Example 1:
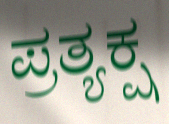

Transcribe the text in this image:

ಪ್ರತ್ಯಕ್ಷ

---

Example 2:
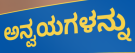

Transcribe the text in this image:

ಅನ್ವಯಗಳನ್ನು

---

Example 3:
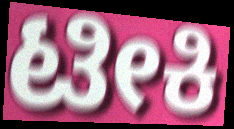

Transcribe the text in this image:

ಟೀಕಿ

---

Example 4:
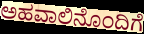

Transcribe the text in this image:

ಅಹವಾಲಿನೊಂದಿಗೆ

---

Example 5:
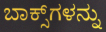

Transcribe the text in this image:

ಬಾಕ್ಸ್‌ಗಳನ್ನು